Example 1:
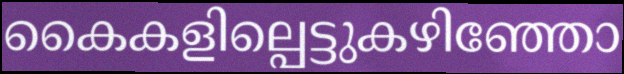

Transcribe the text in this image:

കൈകളില്പെട്ടുകഴിഞ്ഞോ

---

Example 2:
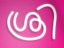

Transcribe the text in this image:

ശ്രി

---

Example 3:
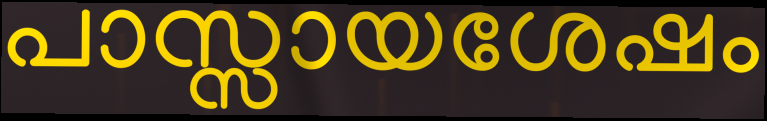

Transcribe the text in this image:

പാസ്സായശേഷം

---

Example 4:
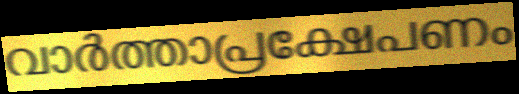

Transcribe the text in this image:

വാർത്താപ്രക്ഷേപണം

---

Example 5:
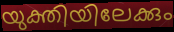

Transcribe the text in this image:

യുക്തിയിലേക്കും